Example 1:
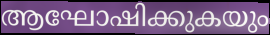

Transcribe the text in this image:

ആഘോഷിക്കുകയും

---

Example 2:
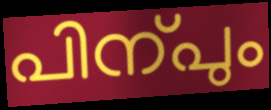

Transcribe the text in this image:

പിന്പും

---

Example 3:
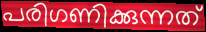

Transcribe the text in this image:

പരിഗണിക്കുന്നത്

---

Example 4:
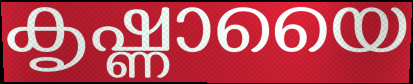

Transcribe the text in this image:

കൃഷ്ണായൈ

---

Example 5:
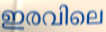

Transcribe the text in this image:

ഇരവിലെ